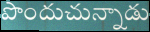
పొందుచున్నాడు